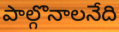
పాల్గొనాలనేది